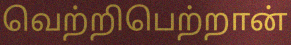
வெற்றிபெற்றான்